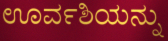
ಊರ್ವಶಿಯನ್ನು